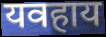
यवहाय